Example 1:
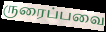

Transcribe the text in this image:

ருரைப்பவை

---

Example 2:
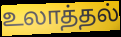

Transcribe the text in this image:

உலாத்தல்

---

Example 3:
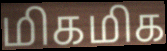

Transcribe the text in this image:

மிகமிக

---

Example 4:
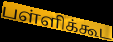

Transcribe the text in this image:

பள்ளிக்கூட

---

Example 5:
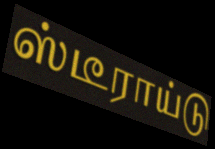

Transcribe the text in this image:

ஸ்டீராய்டு